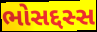
ભોસદ્દસ્સ